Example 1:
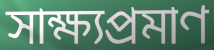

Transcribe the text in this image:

সাক্ষ্যপ্রমাণ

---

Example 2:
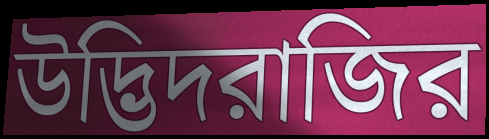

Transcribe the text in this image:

উদ্ভিদরাজির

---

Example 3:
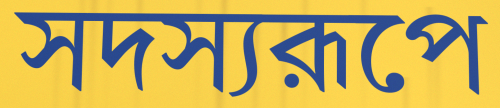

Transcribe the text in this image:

সদস্যরূপে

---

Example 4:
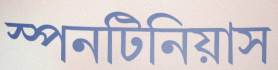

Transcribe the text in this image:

স্পনটিনিয়াস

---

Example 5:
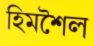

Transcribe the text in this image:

হিমশৈল